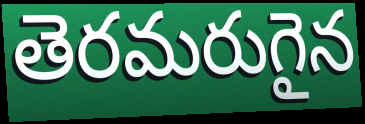
తెరమరుగైన